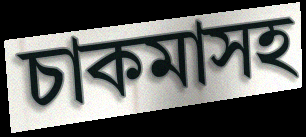
চাকমাসহ